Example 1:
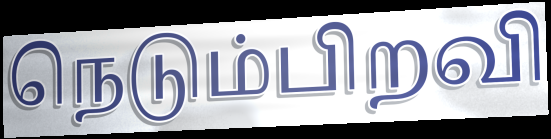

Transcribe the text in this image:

நெடும்பிறவி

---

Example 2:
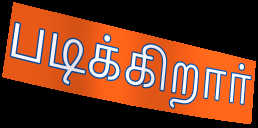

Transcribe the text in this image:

படிக்கிறார்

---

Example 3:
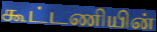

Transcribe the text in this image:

கூட்டணியின்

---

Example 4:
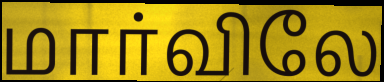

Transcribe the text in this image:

மார்விலே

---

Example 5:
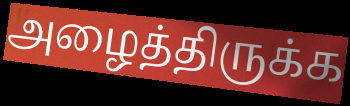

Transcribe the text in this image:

அழைத்திருக்க